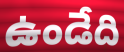
ఉండేది